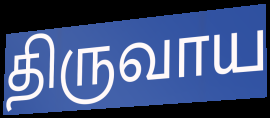
திருவாய